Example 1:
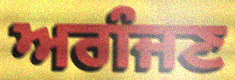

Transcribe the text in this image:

ਅਗੰਜਣ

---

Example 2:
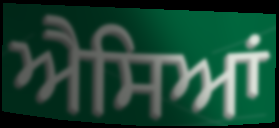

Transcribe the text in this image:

ਐਸਿਆਂ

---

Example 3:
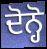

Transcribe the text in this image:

ਦੋਨ੍ਹੋ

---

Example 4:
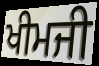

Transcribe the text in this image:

ਖੀਮਜੀ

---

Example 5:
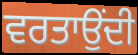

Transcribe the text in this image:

ਵਰਤਾਉਂਦੀ